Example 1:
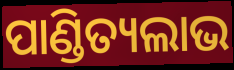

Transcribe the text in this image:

ପାଣ୍ଡିତ୍ୟଲାଭ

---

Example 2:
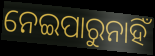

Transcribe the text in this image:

ନେଇପାରୁନାହିଁ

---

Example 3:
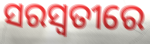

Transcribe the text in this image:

ସରସ୍ୱତୀରେ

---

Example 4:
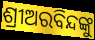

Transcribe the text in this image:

ଶ୍ରୀଅରବିନ୍ଦଙ୍କୁ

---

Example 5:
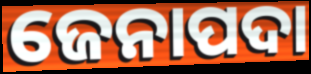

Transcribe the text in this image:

ଜେନାପଦା